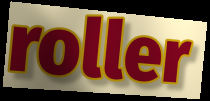
roller